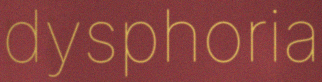
dysphoria